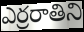
ఎర్రరాతిని